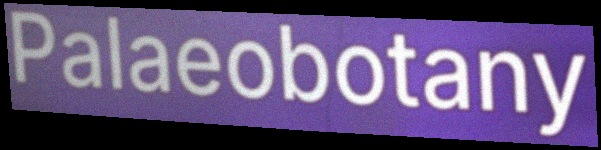
Palaeobotany